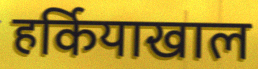
हर्कियाखाल